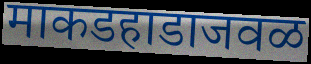
माकडहाडाजवळ